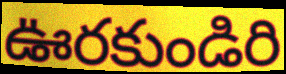
ఊరకుండిరి